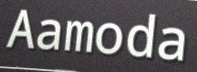
Aamoda